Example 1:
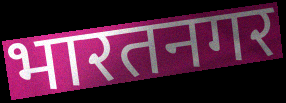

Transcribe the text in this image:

भारतनगर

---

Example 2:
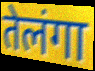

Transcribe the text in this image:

तेलंगा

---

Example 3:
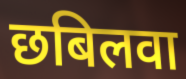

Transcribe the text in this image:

छबिलवा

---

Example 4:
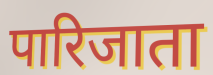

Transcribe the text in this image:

पारिजाता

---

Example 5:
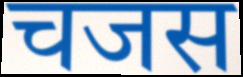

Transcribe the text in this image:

चजस